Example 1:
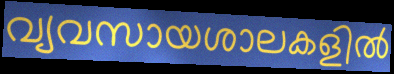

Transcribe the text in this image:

വ്യവസായശാലകളിൽ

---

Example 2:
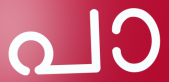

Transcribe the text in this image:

പാ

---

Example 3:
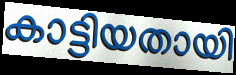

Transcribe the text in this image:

കാട്ടിയതായി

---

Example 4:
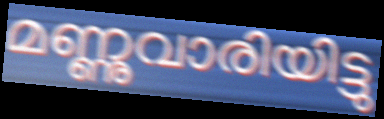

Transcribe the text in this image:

മണ്ണുവാരിയിട്ടു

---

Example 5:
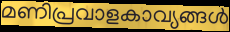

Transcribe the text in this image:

മണിപ്രവാളകാവ്യങ്ങൾ